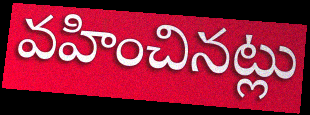
వహించినట్లు